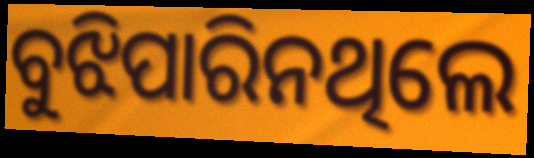
ବୁଝିପାରିନଥିଲେ